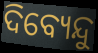
ଦିବ୍ୟେନ୍ଦୁ